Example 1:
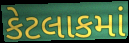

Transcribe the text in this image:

કેટલાકમાં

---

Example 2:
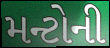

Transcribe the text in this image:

મન્ટોની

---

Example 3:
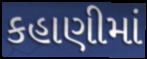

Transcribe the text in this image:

કહાણીમાં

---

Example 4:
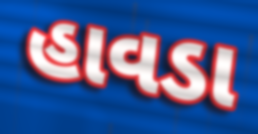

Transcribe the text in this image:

હાવડા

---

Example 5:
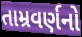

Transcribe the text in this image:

તામ્રવર્ણનો